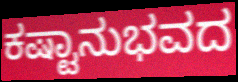
ಕಷ್ಟಾನುಭವದ